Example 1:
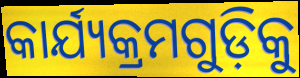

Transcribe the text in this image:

କାର୍ଯ୍ୟକ୍ରମଗୁଡ଼ିକୁ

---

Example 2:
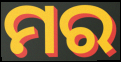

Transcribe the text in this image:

ମର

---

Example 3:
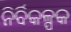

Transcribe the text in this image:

ନିର୍ବିକଳ୍ପକ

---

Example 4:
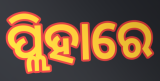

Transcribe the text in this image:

ପ୍ଲିହାରେ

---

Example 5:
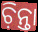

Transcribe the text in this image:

ଚ଼ିନ୍ତା